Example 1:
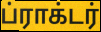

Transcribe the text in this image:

ப்ராக்டர்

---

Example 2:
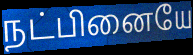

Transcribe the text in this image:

நட்பினையே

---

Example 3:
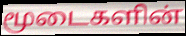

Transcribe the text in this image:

மூடைகளின்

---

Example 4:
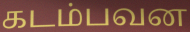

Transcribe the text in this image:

கடம்பவன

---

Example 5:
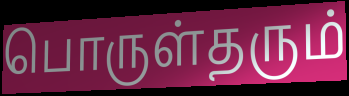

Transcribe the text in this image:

பொருள்தரும்